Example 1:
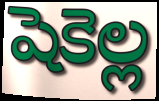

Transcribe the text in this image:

షెకెల్ల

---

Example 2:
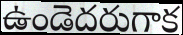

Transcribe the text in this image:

ఉండెదరుగాక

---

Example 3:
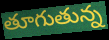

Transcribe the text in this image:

తూగుతున్న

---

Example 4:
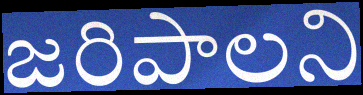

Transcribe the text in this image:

జరిపాలని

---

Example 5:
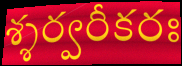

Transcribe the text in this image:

శ్శర్వరీకరః